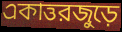
একাত্তরজুড়ে